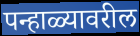
पन्हाळ्यावरील